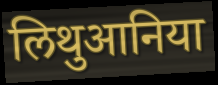
लिथुआनिया